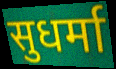
सुधर्मा